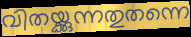
വിതയ്ക്കുന്നതുതന്നെ